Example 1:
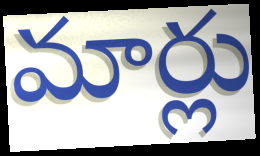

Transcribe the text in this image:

మార్లు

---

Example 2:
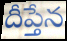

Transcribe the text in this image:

దీప్తేన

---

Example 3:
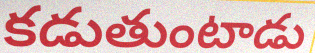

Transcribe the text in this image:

కడుతుంటాడు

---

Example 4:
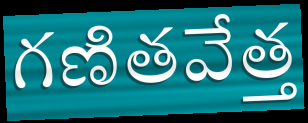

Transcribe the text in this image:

గణితవేత్త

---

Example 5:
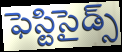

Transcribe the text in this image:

ఫెస్టిసైడ్స్